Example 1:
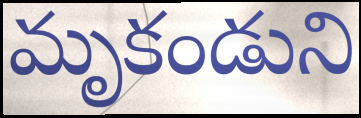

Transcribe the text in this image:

మృకండుని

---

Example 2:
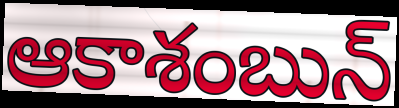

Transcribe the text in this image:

ఆకాశంబున్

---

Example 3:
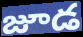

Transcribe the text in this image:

జూడ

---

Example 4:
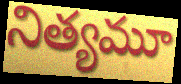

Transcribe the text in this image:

నిత్యమూ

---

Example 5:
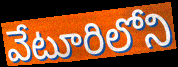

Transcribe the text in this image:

వేటూరిలోని